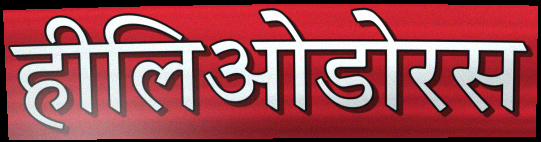
हीलिओडोरस